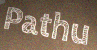
Pathu